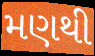
મણથી